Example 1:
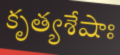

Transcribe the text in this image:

కృత్యశేషాః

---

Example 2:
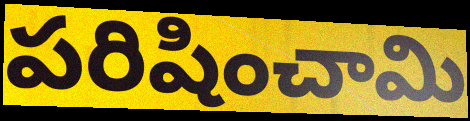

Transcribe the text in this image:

పరిషించామి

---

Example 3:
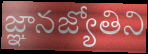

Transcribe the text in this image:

జ్ఞానజ్యోతిని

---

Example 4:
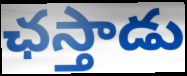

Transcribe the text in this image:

ఛస్తాడు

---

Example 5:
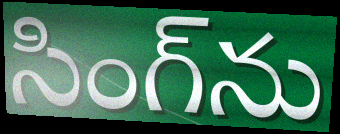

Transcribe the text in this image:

సింగ్‌ను